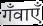
गँवाएँ